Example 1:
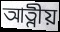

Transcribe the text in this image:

আত্নীয়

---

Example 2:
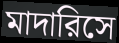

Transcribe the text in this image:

মাদারিসে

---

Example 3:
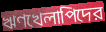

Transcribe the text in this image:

ঋণখেলাপিদের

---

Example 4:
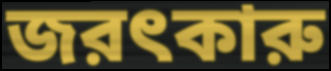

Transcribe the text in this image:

জরৎকারু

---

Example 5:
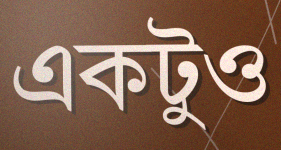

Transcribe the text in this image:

একটুও